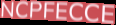
NCPFECCE